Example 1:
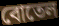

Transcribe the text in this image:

বোতেল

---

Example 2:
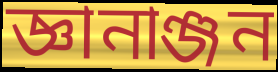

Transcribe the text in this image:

জ্ঞানাঞ্জন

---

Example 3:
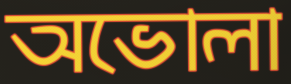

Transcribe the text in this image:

অভোলা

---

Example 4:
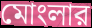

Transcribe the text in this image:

মোংলার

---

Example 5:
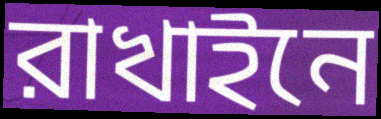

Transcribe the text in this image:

রাখাইনে